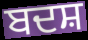
ਬਦਸ਼